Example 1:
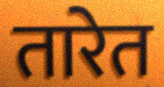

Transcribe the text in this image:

तारेत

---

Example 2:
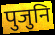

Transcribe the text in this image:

पुजुनि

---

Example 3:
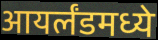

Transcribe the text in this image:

आयर्लंडमध्ये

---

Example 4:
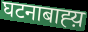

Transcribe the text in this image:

घटनाबाह्य़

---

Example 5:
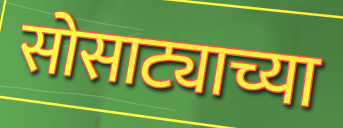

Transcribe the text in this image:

सोसाट्याच्या